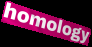
homology